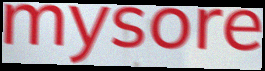
mysore